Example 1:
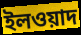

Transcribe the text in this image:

ইলওয়াদ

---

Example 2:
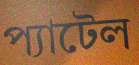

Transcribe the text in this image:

প্যাটেল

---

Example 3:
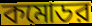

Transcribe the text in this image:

কমোডর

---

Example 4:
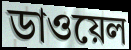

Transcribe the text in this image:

ডাওয়েল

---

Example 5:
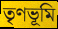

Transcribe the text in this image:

তৃণভূমি